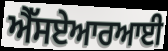
ਐੱਸਏਆਰਆਈ